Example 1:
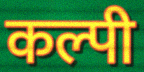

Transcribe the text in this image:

कल्पी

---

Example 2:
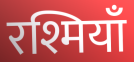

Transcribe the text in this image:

रश्मियाँ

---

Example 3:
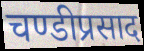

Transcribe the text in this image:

चण्डीप्रसाद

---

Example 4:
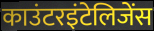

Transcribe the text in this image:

काउंटरइंटेलिजेंस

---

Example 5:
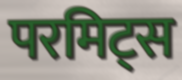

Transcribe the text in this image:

परमिट्स